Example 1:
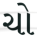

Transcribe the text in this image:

ચો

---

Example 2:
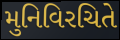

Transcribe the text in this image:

મુનિવિરચિતે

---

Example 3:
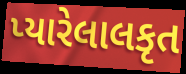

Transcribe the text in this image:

પ્યારેલાલકૃત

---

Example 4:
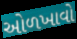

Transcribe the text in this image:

ઓળખાવો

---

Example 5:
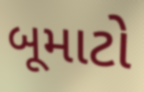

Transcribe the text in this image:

બૂમાટો